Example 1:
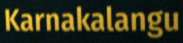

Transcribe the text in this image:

Karnakalangu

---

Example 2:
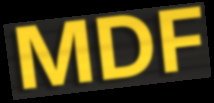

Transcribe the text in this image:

MDF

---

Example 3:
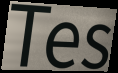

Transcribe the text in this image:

Tes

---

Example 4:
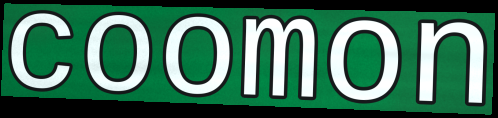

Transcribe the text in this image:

coomon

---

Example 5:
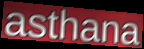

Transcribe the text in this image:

asthana